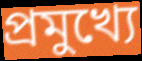
প্ৰমুখ্যে